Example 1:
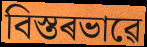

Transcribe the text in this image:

বিস্তৰভাৱে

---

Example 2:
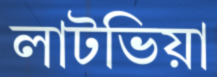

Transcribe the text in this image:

লাটভিয়া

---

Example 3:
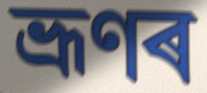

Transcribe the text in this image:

ভ্ৰূণৰ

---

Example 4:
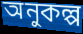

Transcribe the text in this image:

অনুকল্প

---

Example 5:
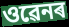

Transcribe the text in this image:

ওৱেনৰ